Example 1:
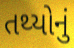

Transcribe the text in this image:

તથ્યોનું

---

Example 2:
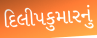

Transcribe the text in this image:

દિલીપકુમારનું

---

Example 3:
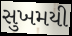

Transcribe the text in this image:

સુખમયી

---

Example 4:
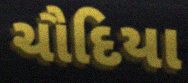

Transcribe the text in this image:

ચૌદિયા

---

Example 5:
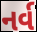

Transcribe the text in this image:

નર્વ